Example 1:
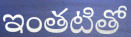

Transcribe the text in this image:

ఇంతటితో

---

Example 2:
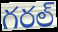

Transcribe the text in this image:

గరల్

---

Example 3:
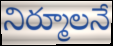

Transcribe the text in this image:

నిర్మూలనే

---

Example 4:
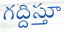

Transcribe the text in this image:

గద్దిస్తూ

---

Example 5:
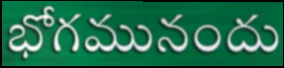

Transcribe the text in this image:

భోగమునందు